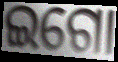
ଇଗୋ